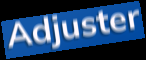
Adjuster